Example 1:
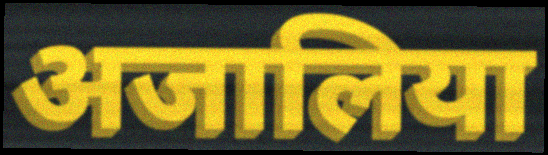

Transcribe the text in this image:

अजालिया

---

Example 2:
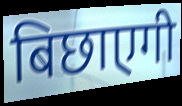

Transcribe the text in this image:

बिछाएगी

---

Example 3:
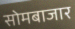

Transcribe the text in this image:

सोमबाजार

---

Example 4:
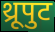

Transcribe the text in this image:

थ्रूपुट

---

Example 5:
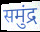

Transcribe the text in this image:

समुंद्र